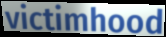
victimhood